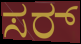
ಸರ‍್